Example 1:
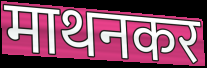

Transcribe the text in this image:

माथनकर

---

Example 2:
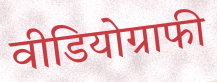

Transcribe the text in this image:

वीडियोग्राफी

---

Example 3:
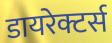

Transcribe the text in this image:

डायरेक्टर्स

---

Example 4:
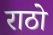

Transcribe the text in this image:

राठो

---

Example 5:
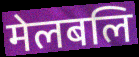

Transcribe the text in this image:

मेलबलि